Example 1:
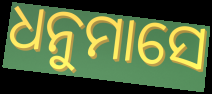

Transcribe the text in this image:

ଧନୁମାସେ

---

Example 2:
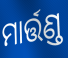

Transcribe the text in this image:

ମାର୍ତ୍ତଣ୍ଡ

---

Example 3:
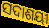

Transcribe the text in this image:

ସଦାଶୟୀ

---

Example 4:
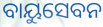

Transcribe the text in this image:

ବାୟୁସେବନ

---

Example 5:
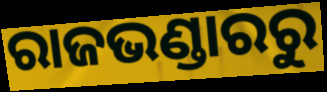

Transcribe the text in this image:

ରାଜଭଣ୍ଡାରରୁ